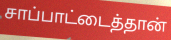
சாப்பாட்டைத்தான்